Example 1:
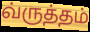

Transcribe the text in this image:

வ்ருத்தம்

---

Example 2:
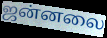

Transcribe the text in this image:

ஜன்னலை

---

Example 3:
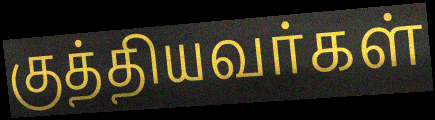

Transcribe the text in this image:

குத்தியவர்கள்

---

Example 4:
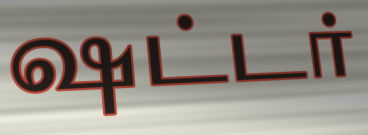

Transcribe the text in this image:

ஷட்டர்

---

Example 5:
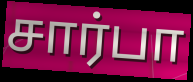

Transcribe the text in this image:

சார்பா